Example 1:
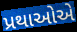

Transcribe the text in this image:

પ્રથાઓએ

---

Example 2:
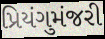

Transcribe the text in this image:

પ્રિયંગુમંજરી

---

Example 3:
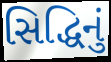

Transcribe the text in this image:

સિદ્ધિનું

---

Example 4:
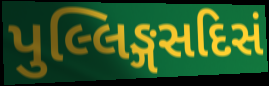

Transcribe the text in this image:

પુલ્લિઙ્ગસદિસં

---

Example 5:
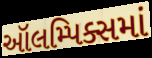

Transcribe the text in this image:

ઑલમ્પિક્સમાં